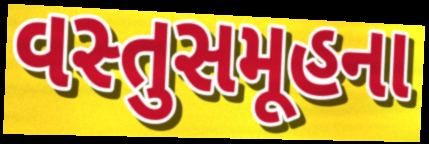
વસ્તુસમૂહના